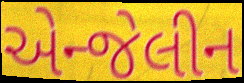
એન્જેલીન